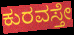
ಕುರವಸ್ತೇ